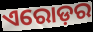
ଏରୋଡ଼ର